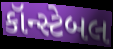
કૉન્સ્ટેબલ